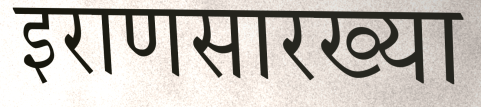
इराणसारख्या